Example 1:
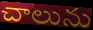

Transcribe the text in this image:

చాలును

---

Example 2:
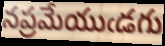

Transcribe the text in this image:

నప్రమేయుఁడగు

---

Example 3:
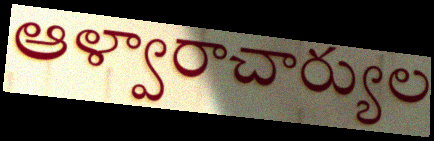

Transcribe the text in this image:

ఆళ్వారాచార్యుల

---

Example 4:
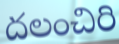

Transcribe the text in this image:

దలంచిరి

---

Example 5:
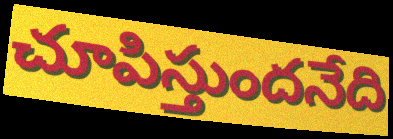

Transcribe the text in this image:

చూపిస్తుందనేది